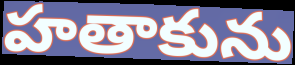
హతాకును